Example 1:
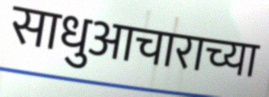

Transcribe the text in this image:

साधुआचाराच्या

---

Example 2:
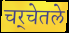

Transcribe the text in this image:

चर्चेतले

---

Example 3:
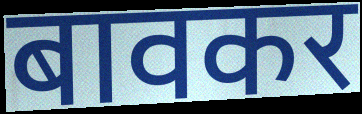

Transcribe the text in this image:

बावकर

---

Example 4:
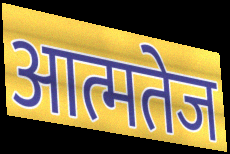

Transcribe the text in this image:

आत्मतेज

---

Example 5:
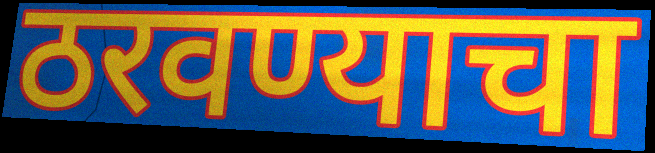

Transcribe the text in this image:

ठरवण्याचा